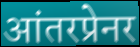
आंतरप्रेनर